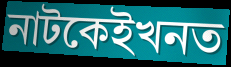
নাটকেইখনত